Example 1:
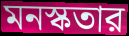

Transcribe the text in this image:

মনস্কতার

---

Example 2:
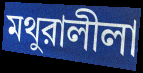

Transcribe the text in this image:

মথুরালীলা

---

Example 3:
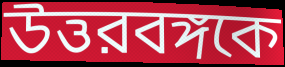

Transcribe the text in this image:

উত্তরবঙ্গকে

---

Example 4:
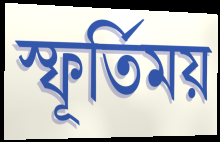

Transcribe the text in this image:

স্ফূর্তিময়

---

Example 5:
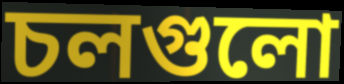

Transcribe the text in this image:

চলগুলো